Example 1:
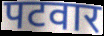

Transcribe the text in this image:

पटवार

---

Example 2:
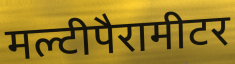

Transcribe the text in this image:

मल्टीपैरामीटर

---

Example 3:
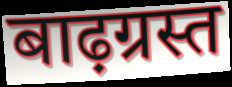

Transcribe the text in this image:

बाढ़ग्रस्त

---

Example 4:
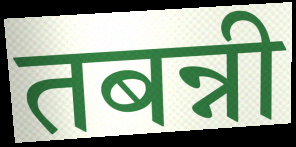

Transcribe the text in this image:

तबन्नी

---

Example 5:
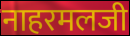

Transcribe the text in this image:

नाहरमलजी